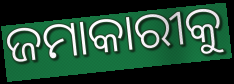
ଜମାକାରୀକୁ